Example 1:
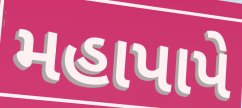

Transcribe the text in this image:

મહાપાપે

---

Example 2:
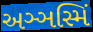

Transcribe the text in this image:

અઞ્ઞસ્મિં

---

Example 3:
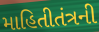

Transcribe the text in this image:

માહિતીતંત્રની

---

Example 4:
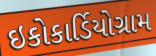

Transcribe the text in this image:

ઇકોકાર્ડિયોગ્રામ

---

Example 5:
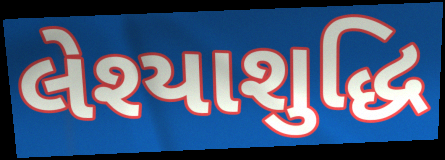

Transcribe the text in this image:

લેશ્યાશુદ્ધિ